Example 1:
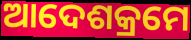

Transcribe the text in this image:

ଆଦେଶକ୍ରମେ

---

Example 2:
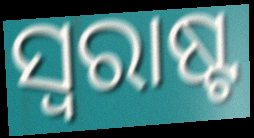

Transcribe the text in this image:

ସ୍ୱରାଷ୍ଟ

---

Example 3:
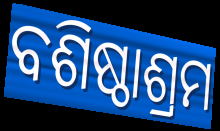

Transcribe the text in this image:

ବଶିଷ୍ଠାଶ୍ରମ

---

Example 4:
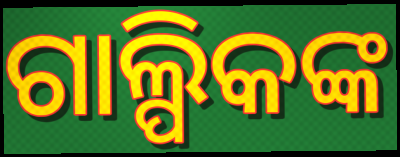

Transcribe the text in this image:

ଗାଲ୍ପିକଙ୍କ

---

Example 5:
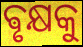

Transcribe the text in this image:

ଵୃକ୍ଷକୁ